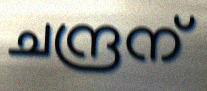
ചന്ദ്രന്